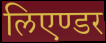
लिएण्डर